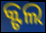
କ୍ଟଲ